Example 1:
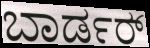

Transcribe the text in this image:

ಬಾರ್ಡರ್‍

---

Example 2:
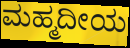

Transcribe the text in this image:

ಮಹ್ಮದೀಯ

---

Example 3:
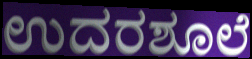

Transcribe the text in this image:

ಉದರಶೂಲೆ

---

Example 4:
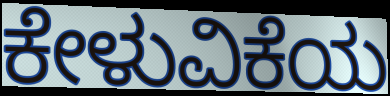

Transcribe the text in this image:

ಕೇಳುವಿಕೆಯ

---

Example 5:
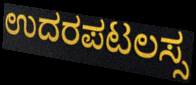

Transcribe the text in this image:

ಉದರಪಟಲಸ್ಸ